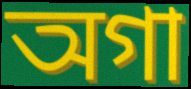
অগা